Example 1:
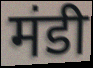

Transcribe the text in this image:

मंडी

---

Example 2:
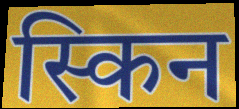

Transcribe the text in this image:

स्‍किन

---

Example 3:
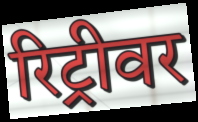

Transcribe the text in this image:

रिट्रीवर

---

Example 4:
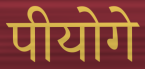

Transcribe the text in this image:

पीयोगे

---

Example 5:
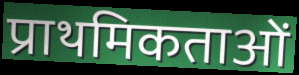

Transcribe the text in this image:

प्राथमिकताओं